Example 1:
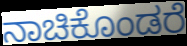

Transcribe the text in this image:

ನಾಚಿಕೊಂಡರೆ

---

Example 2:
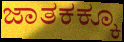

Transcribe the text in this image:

ಜಾತಕಕ್ಕೂ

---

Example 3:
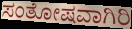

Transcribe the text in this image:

ಸಂತೋಷವಾಗಿರಿ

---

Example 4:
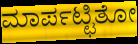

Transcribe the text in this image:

ಮಾರ್ಪಟ್ಟಿತೋ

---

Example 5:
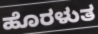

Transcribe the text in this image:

ಹೊರಳುತ